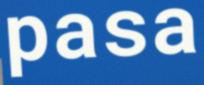
pasa